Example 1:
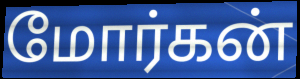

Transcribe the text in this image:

மோர்கன்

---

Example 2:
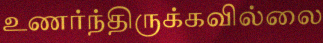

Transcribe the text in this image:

உணர்ந்திருக்கவில்லை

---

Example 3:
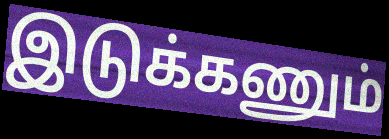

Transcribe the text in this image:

இடுக்கணும்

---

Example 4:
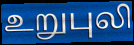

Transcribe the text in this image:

உறுபுலி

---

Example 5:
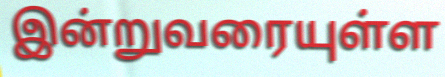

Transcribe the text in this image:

இன்றுவரையுள்ள